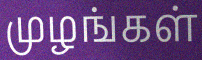
முழங்கள்